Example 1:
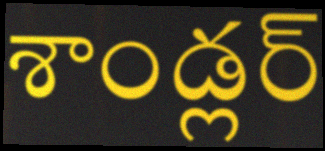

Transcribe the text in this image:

శాండ్లర్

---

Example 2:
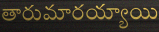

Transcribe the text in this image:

తారుమారయ్యాయి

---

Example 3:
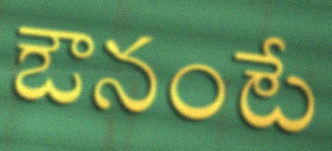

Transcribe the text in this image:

ఔనంటే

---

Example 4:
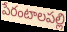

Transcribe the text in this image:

పేరంటాలపల్లి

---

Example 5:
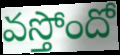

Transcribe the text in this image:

వస్తోందో